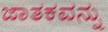
ಜಾತಕವನ್ನು